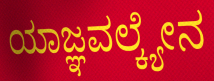
ಯಾಜ್ಞವಲ್ಕ್ಯೇನ